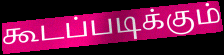
கூடப்படிக்கும்